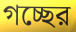
গচ্ছের